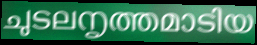
ചുടലനൃത്തമാടിയ